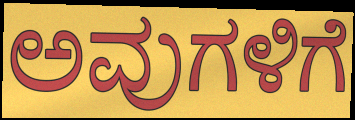
ಅವುಗಳಿಗೆ